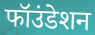
फॉउंडेशन